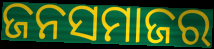
ଜନସମାଜର